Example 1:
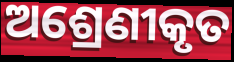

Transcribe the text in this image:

ଅଶ୍ରେଣୀକୃତ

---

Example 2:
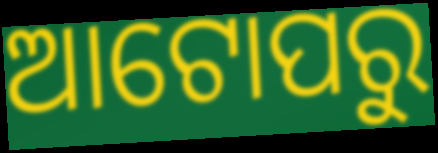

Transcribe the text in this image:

ଆଟୋପରୁ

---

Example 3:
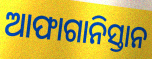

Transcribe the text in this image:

ଆଫାଗାନିସ୍ତାନ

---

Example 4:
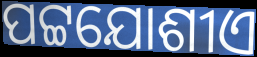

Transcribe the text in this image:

ପଟ୍ଟଯୋଶୀଏ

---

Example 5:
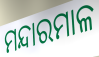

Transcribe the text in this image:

ମନ୍ଦାରମାଳ